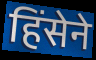
हिंसेने